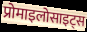
प्रोमाइलोसाइट्स